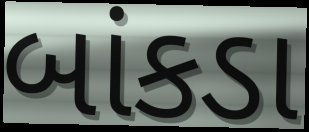
બાંકડા